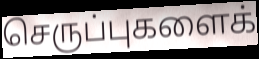
செருப்புகளைக்